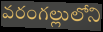
వరంగల్లులోని